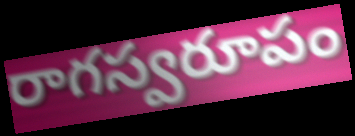
రాగస్వరూపం